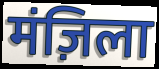
मंज़िला